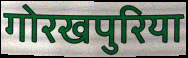
गोरखपुरिया